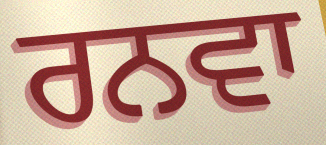
ਰਨਵਾ